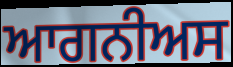
ਆਗਨੀਅਸ